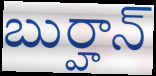
బుర్హాన్